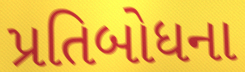
પ્રતિબોધના